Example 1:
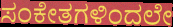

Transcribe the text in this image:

ಸಂಕೇತಗಳಿಂದಲೇ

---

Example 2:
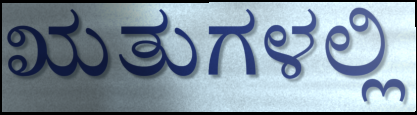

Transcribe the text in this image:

ಋತುಗಳಲ್ಲಿ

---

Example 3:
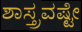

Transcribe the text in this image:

ಶಾಸ್ತ್ರವಷ್ಟೇ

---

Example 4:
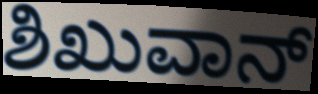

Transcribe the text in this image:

ಶಿಖುವಾನ್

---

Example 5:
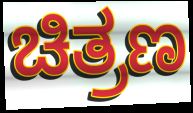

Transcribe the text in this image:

ಚಿತ್ರಣ